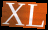
XL